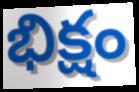
భిక్షం